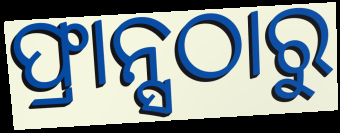
ଫ୍ରାନ୍ସଠାରୁ